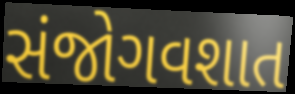
સંજોગવશાત